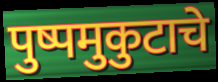
पुष्पमुकुटाचे